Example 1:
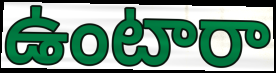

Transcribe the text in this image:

ఉంటారా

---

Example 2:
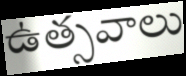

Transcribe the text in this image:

ఉత్సవాలు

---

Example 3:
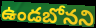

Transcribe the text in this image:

ఉండబోనని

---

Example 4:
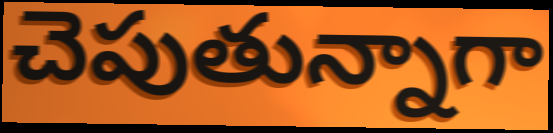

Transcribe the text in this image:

చెపుతున్నాగా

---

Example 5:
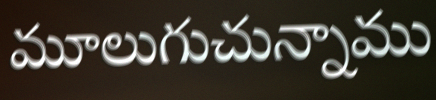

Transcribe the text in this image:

మూలుగుచున్నాము